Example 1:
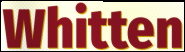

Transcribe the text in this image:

Whitten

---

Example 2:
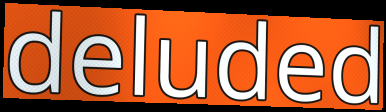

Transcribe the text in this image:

deluded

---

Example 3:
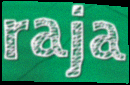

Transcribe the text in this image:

raja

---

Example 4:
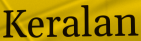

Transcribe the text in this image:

Keralan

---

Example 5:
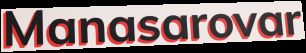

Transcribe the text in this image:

Manasarovar